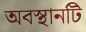
অবস্থানটি